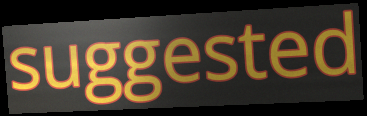
suggested